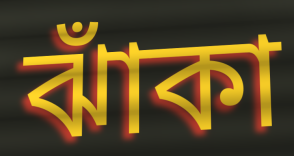
ঝাঁকা